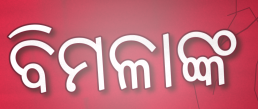
ବିମଳାଙ୍କ